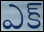
ఎక్